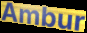
Ambur